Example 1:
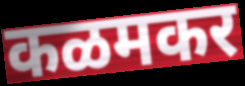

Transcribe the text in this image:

कळमकर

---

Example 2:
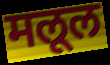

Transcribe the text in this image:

मलूल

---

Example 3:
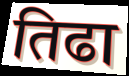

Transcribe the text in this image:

तिढा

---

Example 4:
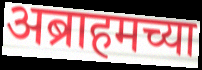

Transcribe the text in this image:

अब्राहमच्या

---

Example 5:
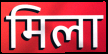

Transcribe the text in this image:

मिला